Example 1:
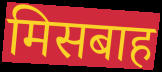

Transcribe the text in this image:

मिसबाह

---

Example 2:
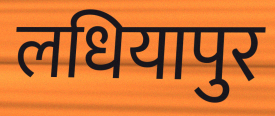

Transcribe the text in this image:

लधियापुर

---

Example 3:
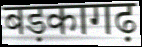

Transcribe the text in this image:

बड़कागढ़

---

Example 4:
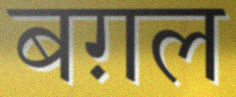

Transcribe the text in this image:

बग़ल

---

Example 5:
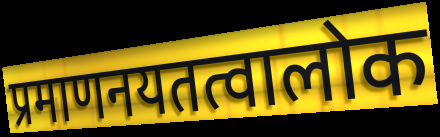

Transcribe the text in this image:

प्रमाणनयतत्वालोक